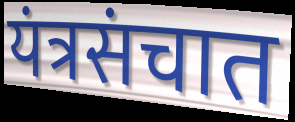
यंत्रसंचात